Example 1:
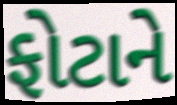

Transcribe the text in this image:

ફોટાને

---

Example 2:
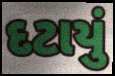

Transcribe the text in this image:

દટાયું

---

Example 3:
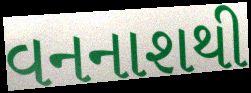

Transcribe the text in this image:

વનનાશથી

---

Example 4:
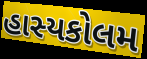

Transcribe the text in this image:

હાસ્યકોલમ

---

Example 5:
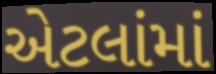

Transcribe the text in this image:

એટલાંમાં